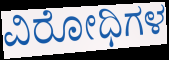
ವಿರೋಧಿಗಳ